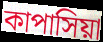
কাপাসিয়া